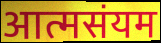
आत्मसंयम